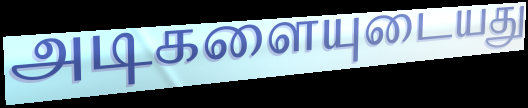
அடிகளையுடையது